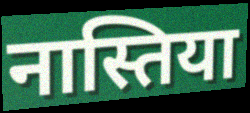
नास्तिया